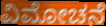
ವಿಮೋಚನೆ